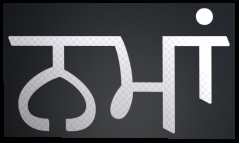
ਨਮਾਂ